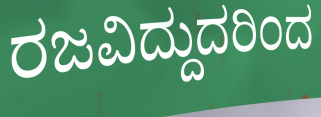
ರಜವಿದ್ದುದರಿಂದ